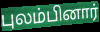
புலம்பினார்